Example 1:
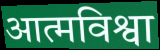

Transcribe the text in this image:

आत्मविश्वा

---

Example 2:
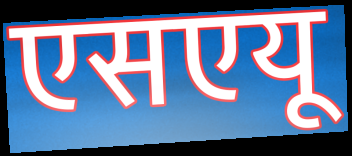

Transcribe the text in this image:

एसएयू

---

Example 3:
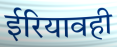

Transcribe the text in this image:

ईरियावही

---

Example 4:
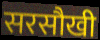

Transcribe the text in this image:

सरसौखी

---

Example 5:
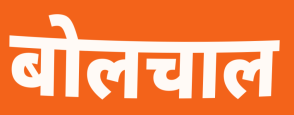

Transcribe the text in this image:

बोलचाल